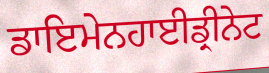
ਡਾਇਮੇਨਹਾਈਡ੍ਰੀਨੇਟ